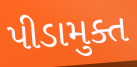
પીડામુક્ત